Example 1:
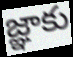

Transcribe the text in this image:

జ్ఞాకు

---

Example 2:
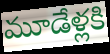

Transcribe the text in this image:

మూడేళ్లకి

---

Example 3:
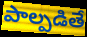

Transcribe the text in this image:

పాల్పడితే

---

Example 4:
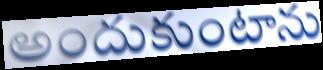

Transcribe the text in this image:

అందుకుంటాను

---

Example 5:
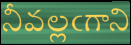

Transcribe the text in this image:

నీవల్లఁగాని